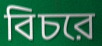
বিচরে